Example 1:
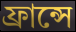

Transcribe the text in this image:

ফ্ৰান্সে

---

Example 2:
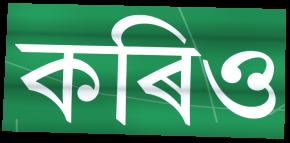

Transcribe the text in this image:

কৰিও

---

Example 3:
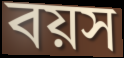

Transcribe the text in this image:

বয়স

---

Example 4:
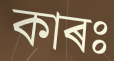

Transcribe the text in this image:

কাৰঃ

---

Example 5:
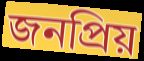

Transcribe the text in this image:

জনপ্ৰিয়